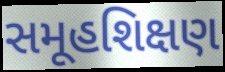
સમૂહશિક્ષણ